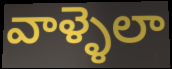
వాళ్ళెలా